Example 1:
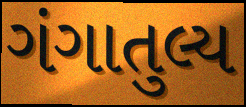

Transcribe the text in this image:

ગંગાતુલ્ય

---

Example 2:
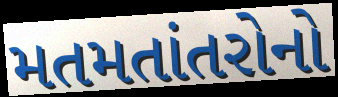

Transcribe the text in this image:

મતમતાંતરોનો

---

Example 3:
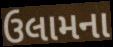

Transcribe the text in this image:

ઉલામના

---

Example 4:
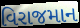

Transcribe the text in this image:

વિરાજમાન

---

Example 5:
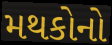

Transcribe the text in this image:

મથકોનો